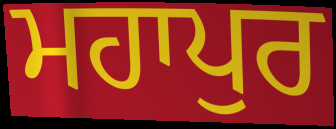
ਮਹਾਪੁਰ